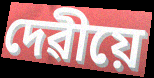
দেৱীয়ে